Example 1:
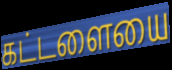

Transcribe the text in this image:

கட்டளையை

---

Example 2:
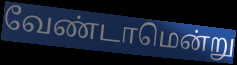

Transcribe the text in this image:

வேண்டாமென்று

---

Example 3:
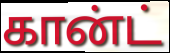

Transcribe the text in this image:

கான்ட்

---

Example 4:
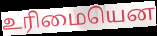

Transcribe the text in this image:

உரிமையென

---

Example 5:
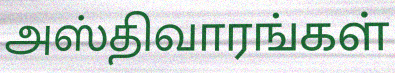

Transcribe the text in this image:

அஸ்திவாரங்கள்